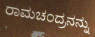
ರಾಮಚಂದ್ರನನ್ನು